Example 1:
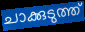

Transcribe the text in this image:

ചാക്കുടുത്ത്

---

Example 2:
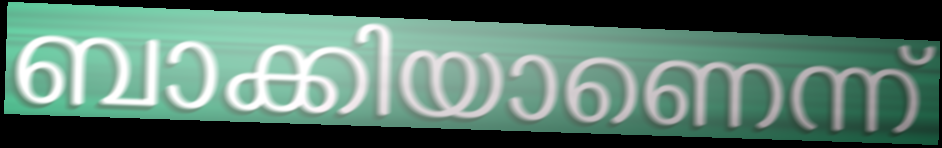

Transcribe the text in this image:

ബാക്കിയാണെന്ന്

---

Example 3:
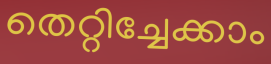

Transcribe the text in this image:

തെറ്റിച്ചേക്കാം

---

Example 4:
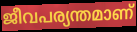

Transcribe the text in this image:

ജീവപര്യന്തമാണ്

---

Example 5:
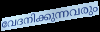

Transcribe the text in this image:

വേദനിക്കുന്നവരും